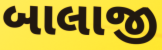
બાલાજી